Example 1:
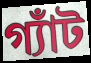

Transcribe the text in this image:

গ্যাঁট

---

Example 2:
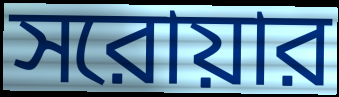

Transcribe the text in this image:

সরোয়ার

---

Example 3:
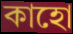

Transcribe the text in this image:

কাহো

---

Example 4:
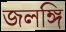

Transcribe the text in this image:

জলঙ্গি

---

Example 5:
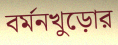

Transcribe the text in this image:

বর্মনখুড়োর